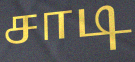
சாடி